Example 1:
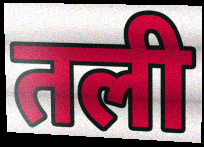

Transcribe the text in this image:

तली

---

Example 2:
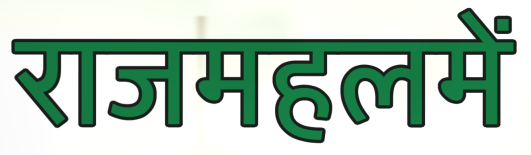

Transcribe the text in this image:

राजमहलमें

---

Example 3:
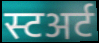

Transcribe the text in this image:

स्टअर्ट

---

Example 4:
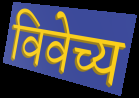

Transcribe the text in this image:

विवेच्य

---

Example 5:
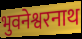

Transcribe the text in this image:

भुवनेश्वरनाथ